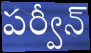
పర్వీన్